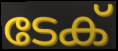
ടേക്